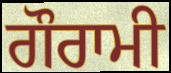
ਗੌਰਾਮੀ